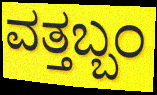
ವತ್ತಬ್ಬಂ